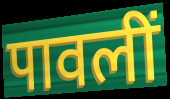
पावलीं